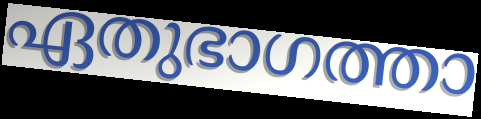
ഏതുഭാഗത്താ